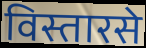
विस्तारसे